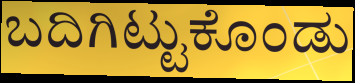
ಬದಿಗಿಟ್ಟುಕೊಂಡು